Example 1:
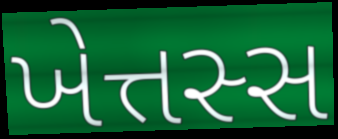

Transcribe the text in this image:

ખેત્તસ્સ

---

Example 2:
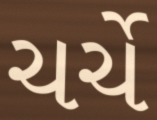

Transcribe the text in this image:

ચર્ચે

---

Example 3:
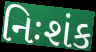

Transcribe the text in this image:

નિઃશંક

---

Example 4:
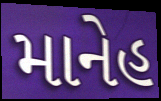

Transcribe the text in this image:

માનેહ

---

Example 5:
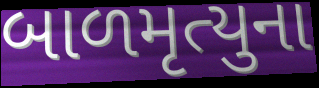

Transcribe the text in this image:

બાળમૃત્યુના